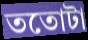
ততোটা